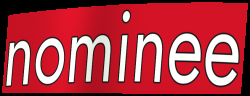
nominee